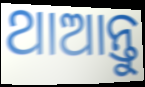
ଥାଆନ୍ତୁ